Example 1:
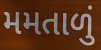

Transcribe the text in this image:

મમતાળું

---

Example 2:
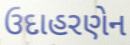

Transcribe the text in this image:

ઉદાહરણેન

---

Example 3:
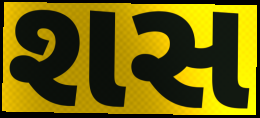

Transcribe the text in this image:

શસ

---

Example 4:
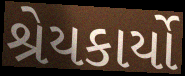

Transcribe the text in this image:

શ્રેયકાર્યો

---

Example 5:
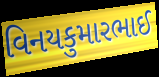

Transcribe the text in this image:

વિનયકુમારભાઈ